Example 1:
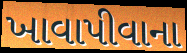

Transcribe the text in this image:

ખાવાપીવાના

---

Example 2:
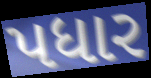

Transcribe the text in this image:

પધાર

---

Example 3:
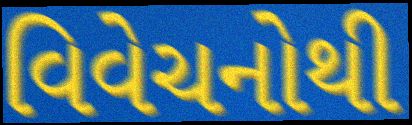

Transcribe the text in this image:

વિવેચનોથી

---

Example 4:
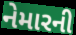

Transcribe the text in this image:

નેમારની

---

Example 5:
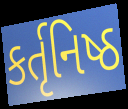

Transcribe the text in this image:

કર્તૃનિષ્ઠ